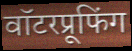
वॉटरप्रूफिंग